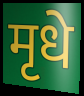
मृधे